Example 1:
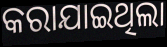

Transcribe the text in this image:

କରାଯାଇଥିଲା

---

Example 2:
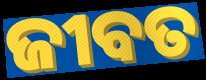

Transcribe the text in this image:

ଜୀବତ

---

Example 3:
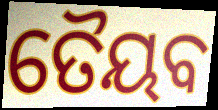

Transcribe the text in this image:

ତୈୟବ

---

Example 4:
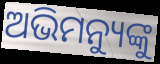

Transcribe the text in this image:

ଅଭିମନ୍ୟୁଙ୍କୁ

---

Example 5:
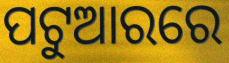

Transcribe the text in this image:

ପଟୁଆରରେ